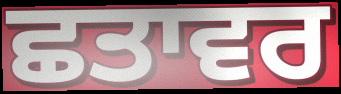
ਛਤਾਵਰ